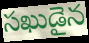
సఖుడైన